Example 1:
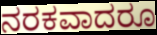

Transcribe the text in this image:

ನರಕವಾದರೂ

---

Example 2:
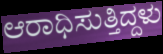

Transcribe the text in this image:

ಆರಾಧಿಸುತ್ತಿದ್ದಳು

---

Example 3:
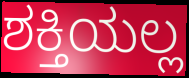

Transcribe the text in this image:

ಶಕ್ತಿಯಲ್ಲ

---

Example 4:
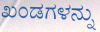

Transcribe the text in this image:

ಖಂಡಗಳನ್ನು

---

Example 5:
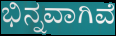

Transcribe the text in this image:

ಭಿನ್ನವಾಗಿವೆ